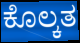
ಕೊಲ್ಕತ